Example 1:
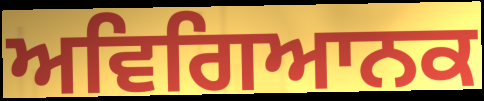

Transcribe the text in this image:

ਅਵਿਗਿਆਨਕ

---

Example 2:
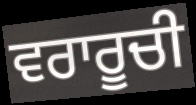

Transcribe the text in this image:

ਵਰਾਰੂਚੀ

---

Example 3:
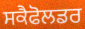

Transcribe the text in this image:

ਸਕੈਫੋਲਡਰ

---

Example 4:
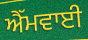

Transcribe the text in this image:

ਐੱਮਵਾਈ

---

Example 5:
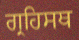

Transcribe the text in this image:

ਗ੍ਰਹਿਸਥ